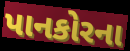
પાનકોરના